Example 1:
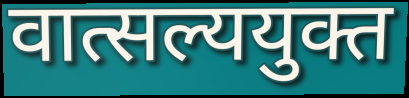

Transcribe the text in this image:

वात्सल्ययुक्त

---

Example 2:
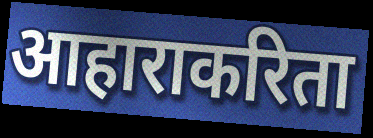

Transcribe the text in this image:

आहाराकरिता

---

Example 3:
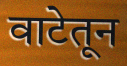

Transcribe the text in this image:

वाटेतून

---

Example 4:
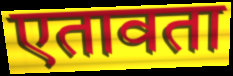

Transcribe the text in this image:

एतावता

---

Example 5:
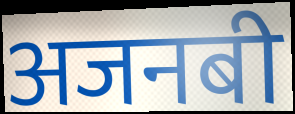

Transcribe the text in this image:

अजनबी